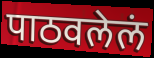
पाठवलेलं